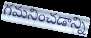
గమనించడాన్ని